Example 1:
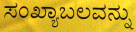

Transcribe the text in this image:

ಸಂಖ್ಯಾಬಲವನ್ನು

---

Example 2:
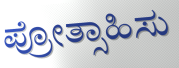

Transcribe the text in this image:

ಪ್ರೋತ್ಸಾಹಿಸು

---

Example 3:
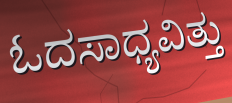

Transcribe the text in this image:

ಓದಸಾಧ್ಯವಿತ್ತು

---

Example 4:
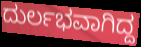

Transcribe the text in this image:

ದುರ್ಲಭವಾಗಿದ್ದ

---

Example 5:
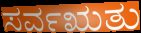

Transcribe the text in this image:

ಸರ್ವಋತು